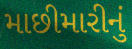
માછીમારીનું